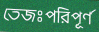
তেজঃপরিপূর্ণ